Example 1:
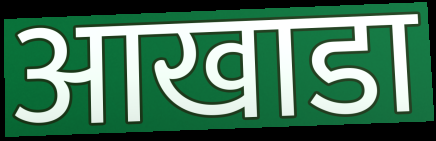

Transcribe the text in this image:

आखाडा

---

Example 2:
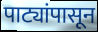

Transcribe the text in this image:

पाट्यांपासून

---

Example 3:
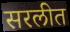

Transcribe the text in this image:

सरलीत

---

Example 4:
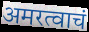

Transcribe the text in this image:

अमरत्वाचं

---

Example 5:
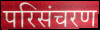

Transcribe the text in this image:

परिसंचरण